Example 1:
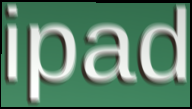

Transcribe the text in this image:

ipad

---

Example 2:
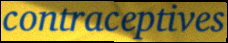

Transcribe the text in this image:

contraceptives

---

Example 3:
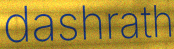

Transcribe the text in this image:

dashrath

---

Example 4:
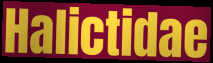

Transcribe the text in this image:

Halictidae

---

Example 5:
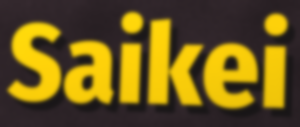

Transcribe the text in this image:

Saikei